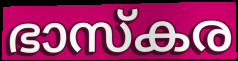
ഭാസ്കര